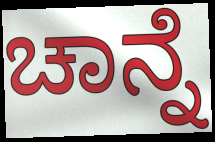
ಚಾನ್ನೆ